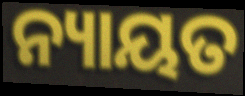
ନ୍ୟାୟତ